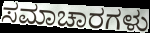
ಸಮಾಚಾರಗಳು